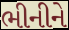
ભીનીને